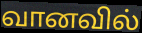
வானவில்